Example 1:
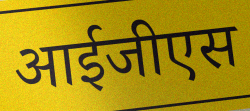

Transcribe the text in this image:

आईजीएस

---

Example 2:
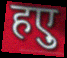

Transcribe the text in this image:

हएु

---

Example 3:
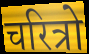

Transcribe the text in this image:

चरित्रो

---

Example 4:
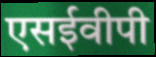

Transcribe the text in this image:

एसईवीपी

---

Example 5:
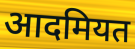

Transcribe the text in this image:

आदमियत